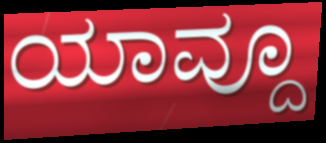
ಯಾವ್ದೂ